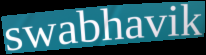
swabhavik